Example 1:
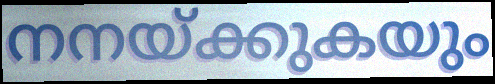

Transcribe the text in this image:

നനയ്ക്കുകയും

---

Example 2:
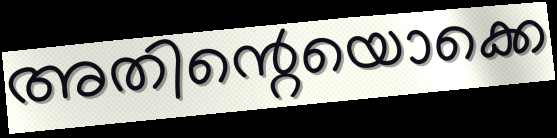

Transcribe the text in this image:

അതിന്റെയൊക്കെ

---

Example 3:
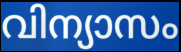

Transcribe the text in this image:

വിന്യാസം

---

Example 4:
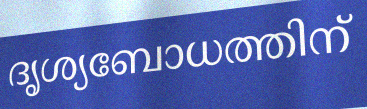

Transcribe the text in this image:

ദൃശ്യബോധത്തിന്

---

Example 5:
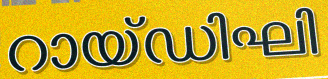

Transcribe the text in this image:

റായ്ഡിഘി